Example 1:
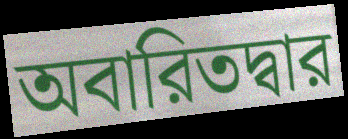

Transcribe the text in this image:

অবারিতদ্বার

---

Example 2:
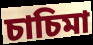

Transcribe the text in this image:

চাচিমা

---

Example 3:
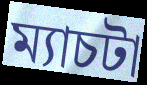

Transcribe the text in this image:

ম্যাচটা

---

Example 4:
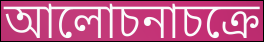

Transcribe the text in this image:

আলোচনাচক্রে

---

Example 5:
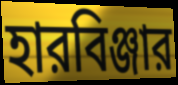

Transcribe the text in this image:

হারবিঞ্জার